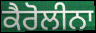
ਕੈਰੋਲੀਨਾ